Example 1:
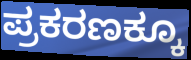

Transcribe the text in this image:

ಪ್ರಕರಣಕ್ಕೂ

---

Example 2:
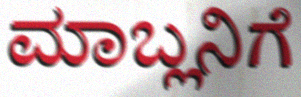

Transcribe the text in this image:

ಮಾಬ್ಲನಿಗೆ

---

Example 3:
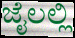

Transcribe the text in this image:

ಜೈಲಲ್ಲಿ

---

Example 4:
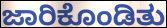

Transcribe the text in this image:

ಜಾರಿಕೊಂಡಿತು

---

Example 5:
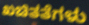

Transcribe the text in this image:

ಖಚಿತತೆಗಳು